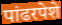
पांढरपेशे